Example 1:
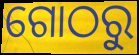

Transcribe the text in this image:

ଗୋଠରୁ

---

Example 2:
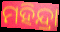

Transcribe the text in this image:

ମହିନ୍ଦ୍ରା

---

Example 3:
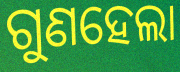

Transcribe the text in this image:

ଗୁଣହେଲା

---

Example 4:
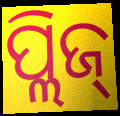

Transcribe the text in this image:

ପ୍ଲିଜ୍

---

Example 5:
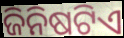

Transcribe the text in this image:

ଜିନିଷଟିଏ